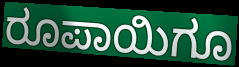
ರೂಪಾಯಿಗೂ